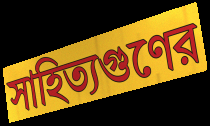
সাহিত্যগুণের